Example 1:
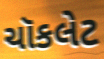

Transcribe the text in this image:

ચૉકલેટ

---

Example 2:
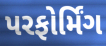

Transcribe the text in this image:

પરફોર્મિંગ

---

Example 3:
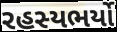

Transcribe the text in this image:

રહસ્યભર્યો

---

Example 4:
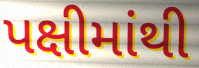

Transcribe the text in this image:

પક્ષીમાંથી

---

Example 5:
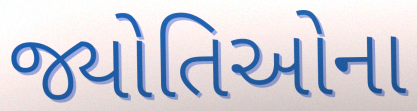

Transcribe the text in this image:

જ્યોતિઓના